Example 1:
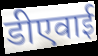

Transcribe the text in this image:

डीएवाई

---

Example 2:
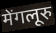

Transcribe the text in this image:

मेंगलूरु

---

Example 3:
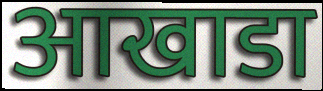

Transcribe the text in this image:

आखाडा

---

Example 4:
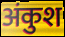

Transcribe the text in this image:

अंकुश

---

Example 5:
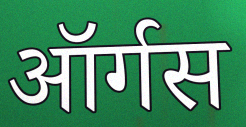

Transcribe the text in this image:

ऑर्गस